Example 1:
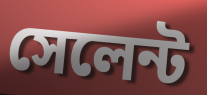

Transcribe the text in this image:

সেলেন্ট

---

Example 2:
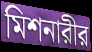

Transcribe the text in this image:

মিশনারীর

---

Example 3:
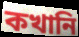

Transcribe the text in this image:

কখানি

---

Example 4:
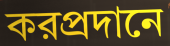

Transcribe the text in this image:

করপ্রদানে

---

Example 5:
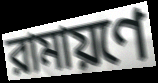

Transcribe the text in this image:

রামায়ণে